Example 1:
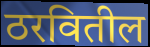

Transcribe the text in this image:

ठरवितील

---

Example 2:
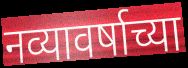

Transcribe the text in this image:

नव्यावर्षाच्या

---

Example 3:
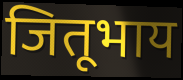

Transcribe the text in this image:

जितूभाय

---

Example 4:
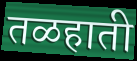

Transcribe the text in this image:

तळहाती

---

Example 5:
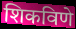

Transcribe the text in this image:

शिकविणे